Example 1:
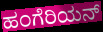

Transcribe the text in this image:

ಹಂಗೆರಿಯನ್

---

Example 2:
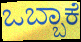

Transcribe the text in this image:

ಒಬ್ಬಾಕೆ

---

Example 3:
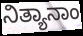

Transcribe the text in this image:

ನಿತ್ಯಾನಾಂ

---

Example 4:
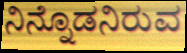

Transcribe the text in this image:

ನಿನ್ನೊಡನಿರುವ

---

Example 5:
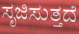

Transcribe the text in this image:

ಸೃಜಿಸುತ್ತದೆ